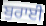
ਬੁਰਾਈ